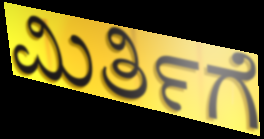
ಮಿರ್ತಿಗೆ